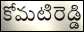
కోమటిరెడ్డి